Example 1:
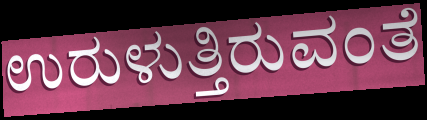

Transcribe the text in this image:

ಉರುಳುತ್ತಿರುವಂತೆ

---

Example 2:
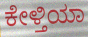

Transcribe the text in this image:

ಕೇಳ್ತಿಯಾ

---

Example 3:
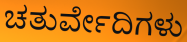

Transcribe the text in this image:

ಚತುರ್ವೇದಿಗಳು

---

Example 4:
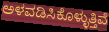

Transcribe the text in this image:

ಅಳವಡಿಸಿಕೊಳ್ಳುತ್ತಿವೆ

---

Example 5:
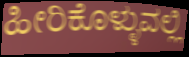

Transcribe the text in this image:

ಹೀರಿಕೊಳ್ಳುವಲ್ಲಿ